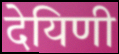
देयिणी